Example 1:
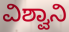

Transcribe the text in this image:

ವಿಶ್ವಾನಿ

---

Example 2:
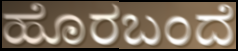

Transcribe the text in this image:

ಹೊರಬಂದೆ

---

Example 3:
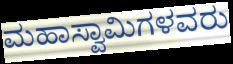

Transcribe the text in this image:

ಮಹಾಸ್ವಾಮಿಗಳವರು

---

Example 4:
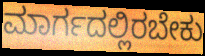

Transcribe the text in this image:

ಮಾರ್ಗದಲ್ಲಿರಬೇಕು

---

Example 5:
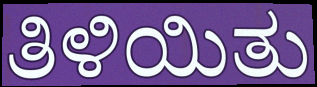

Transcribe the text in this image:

ತಿಳಿಯಿತು